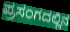
ಪ್ರಸಂಗದಲ್ಲಿನ